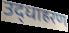
उद्धाहरण